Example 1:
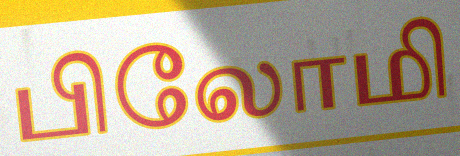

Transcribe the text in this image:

பிலோமி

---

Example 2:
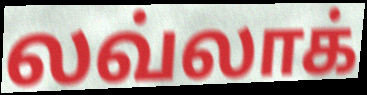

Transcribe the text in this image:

லவ்லாக்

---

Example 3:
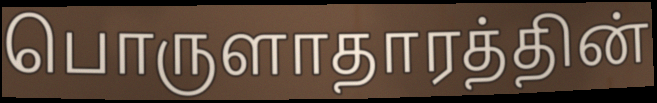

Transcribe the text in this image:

பொருளாதாரத்தின்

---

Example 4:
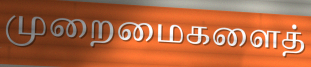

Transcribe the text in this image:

முறைமைகளைத்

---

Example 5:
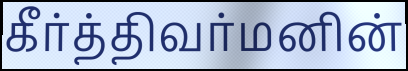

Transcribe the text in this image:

கீர்த்திவர்மனின்